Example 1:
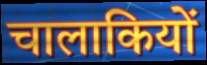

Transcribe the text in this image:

चालाकियों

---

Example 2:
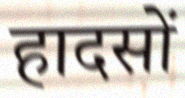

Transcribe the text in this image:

हादसों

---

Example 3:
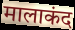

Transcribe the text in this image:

मालाकंद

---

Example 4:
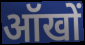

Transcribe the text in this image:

ऑखों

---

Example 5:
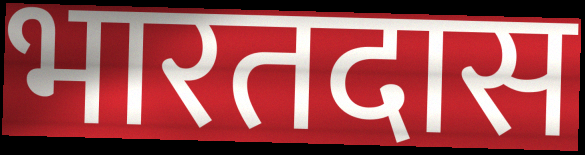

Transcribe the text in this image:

भारतदास